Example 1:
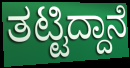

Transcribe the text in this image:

ತಟ್ಟಿದ್ದಾನೆ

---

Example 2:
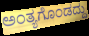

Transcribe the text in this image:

ಅಂತ್ಯಗೊಂಡದ್ದು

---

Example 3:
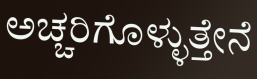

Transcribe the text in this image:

ಅಚ್ಚರಿಗೊಳ್ಳುತ್ತೇನೆ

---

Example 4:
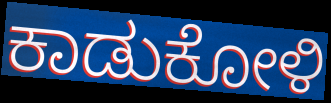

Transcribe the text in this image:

ಕಾಡುಕೋಳಿ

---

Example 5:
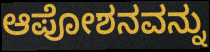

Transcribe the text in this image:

ಆಪೋಶನವನ್ನು